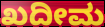
ಖದೀಮ